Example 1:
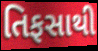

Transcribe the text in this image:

તિફસાથી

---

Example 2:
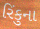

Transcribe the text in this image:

રિંકુના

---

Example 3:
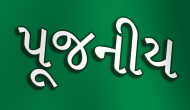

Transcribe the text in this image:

પૂજનીય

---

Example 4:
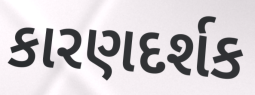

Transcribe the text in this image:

કારણદર્શક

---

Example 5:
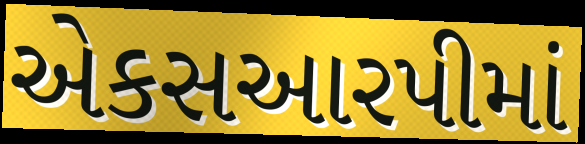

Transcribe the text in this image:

એકસઆરપીમાં